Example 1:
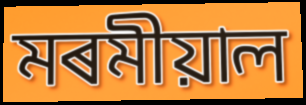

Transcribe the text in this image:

মৰমীয়াল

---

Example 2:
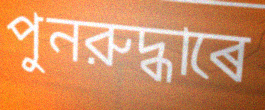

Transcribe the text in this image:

পুনৰুদ্ধাৰে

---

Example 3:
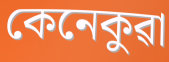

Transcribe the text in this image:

কেনেকুৱা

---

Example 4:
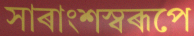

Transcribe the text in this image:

সাৰাংশস্বৰূপে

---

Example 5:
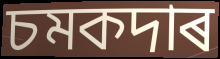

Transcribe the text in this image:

চমকদাৰ